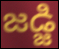
జడ్జి